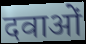
दवाओं